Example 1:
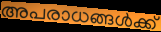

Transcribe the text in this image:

അപരാധങ്ങൾക്ക്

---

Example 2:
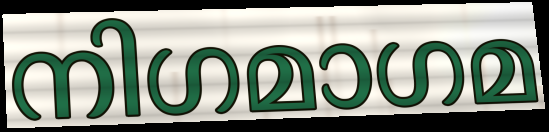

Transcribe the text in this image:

നിഗമാഗമ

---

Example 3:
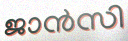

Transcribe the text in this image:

ജാൻസി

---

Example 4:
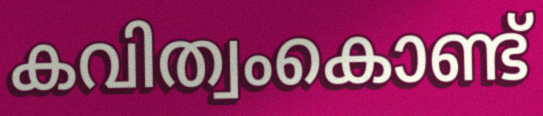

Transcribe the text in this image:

കവിത്വംകൊണ്ട്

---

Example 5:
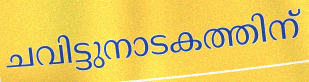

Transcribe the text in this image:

ചവിട്ടുനാടകത്തിന്